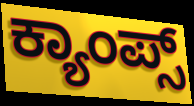
ಕ್ಯಾಂಪ್ಸ್